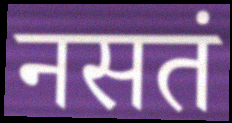
नसतं